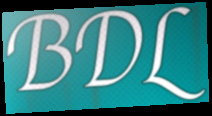
BDL